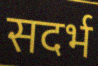
सदर्भ